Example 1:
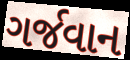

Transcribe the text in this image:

ગર્જવાન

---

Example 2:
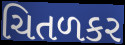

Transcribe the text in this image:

ચિતળકર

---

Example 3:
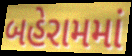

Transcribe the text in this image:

બહેરામમાં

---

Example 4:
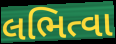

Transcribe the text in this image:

લભિત્વા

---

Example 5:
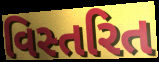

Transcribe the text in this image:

વિસ્તરિત